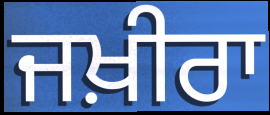
ਜਖ਼ੀਰਾ